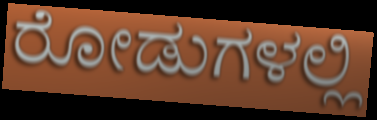
ರೋಡುಗಳಲ್ಲಿ